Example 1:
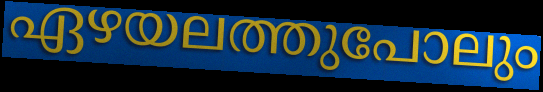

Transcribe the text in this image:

ഏഴയലത്തുപോലും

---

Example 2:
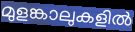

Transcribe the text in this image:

മുളങ്കാലുകളിൽ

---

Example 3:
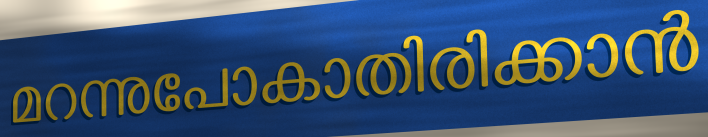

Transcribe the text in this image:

മറന്നുപോകാതിരിക്കാൻ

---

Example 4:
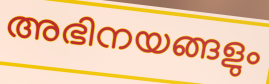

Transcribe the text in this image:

അഭിനയങ്ങളും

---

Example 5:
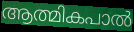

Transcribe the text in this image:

ആത്മികപാൽ